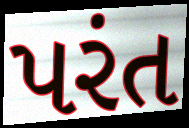
પરંત